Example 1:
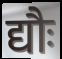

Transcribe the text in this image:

द्यौः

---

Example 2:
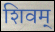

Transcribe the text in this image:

शिवम्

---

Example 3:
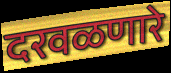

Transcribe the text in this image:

दरवळणारे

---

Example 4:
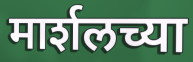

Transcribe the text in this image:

मार्शलच्या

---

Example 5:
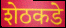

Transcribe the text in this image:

शेठकडे